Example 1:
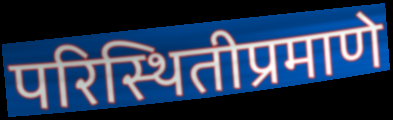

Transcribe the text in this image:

परिस्थितीप्रमाणे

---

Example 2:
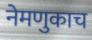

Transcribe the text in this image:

नेमणुकाच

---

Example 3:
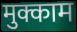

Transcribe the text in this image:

मुक्‍काम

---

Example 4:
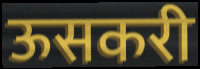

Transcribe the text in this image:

ऊसकरी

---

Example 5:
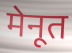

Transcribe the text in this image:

मेनूत